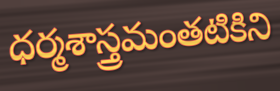
ధర్మశాస్త్రమంతటికిని